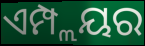
ଏମ୍ପ୍ଲୟର